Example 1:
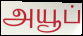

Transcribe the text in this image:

அயூப்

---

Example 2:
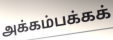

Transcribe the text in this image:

அக்கம்பக்கக்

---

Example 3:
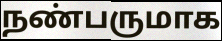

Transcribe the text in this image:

நண்பருமாக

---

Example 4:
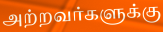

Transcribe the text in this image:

அற்றவர்களுக்கு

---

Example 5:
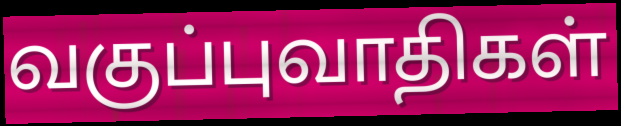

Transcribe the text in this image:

வகுப்புவாதிகள்